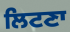
ਲਿਟਣਾ